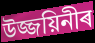
উজ্জয়িনীৰ